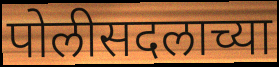
पोलीसदलाच्या